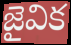
జైవిక